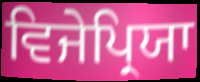
ਵਿਜੇਪ੍ਰਿਯਾ